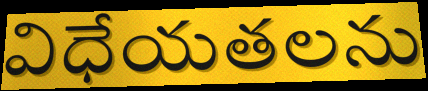
విధేయతలను